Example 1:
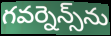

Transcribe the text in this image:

గవర్నెన్స్‌ను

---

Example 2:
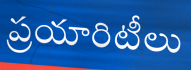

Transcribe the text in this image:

ప్రయారిటీలు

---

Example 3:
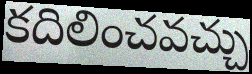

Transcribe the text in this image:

కదిలించవచ్చు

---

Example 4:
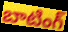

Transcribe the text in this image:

బాటింగ్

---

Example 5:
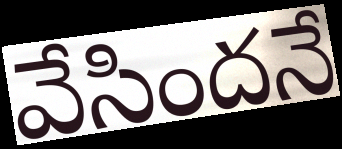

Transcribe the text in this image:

వేసిందనే